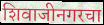
शिवाजीनगरचा